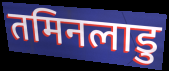
तमिनलाडु